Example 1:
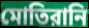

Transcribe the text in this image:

মোতিরানি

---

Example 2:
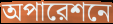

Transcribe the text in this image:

অপারেশনে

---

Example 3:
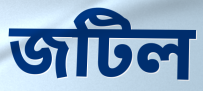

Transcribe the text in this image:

জটিল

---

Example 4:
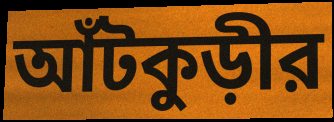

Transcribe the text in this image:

আঁটকুড়ীর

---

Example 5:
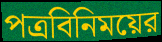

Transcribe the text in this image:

পত্রবিনিময়ের